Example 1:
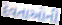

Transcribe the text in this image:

દેવતાઓની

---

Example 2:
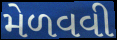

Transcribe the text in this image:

મેળવવી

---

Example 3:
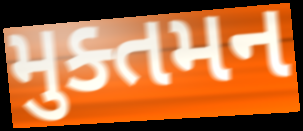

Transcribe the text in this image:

મુક્તમન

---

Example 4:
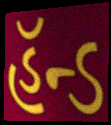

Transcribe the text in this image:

હૅન્ડ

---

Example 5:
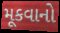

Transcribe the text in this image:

મૂકવાનો